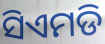
ସିଏମଡି